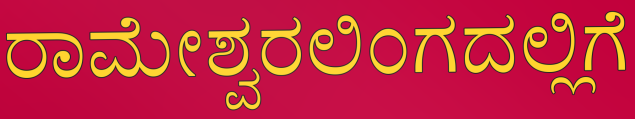
ರಾಮೇಶ್ವರಲಿಂಗದಲ್ಲಿಗೆ